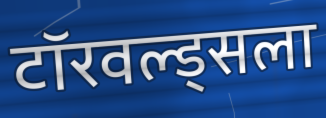
टॉरवल्ड्सला